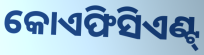
କୋଏଫିସିଏଣ୍ଟ୍